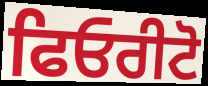
ਫਿਓਰੀਟੋ